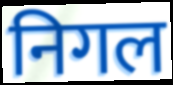
निगल